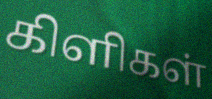
கிளிகள்